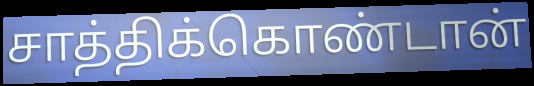
சாத்திக்கொண்டான்